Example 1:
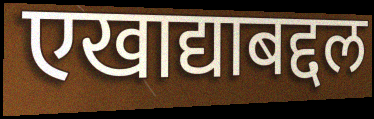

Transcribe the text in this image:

एखाद्याबद्दल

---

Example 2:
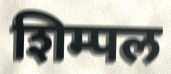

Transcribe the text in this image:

शिम्पल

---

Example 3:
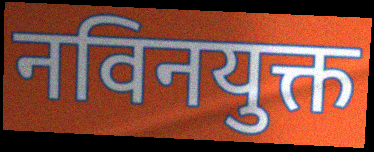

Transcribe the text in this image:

नविनयुक्त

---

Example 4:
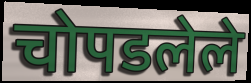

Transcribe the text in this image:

चोपडलेले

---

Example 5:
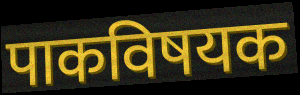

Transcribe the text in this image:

पाकविषयक